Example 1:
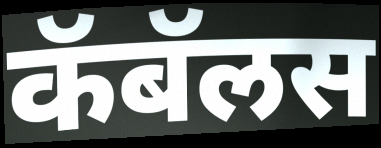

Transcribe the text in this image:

कॅबॅलस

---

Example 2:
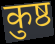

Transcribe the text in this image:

कुष्ठ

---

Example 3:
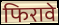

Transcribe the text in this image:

फिरावे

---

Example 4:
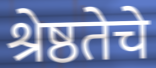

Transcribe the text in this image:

श्रेष्ठतेचे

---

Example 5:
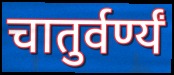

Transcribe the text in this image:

चातुर्वर्ण्यं